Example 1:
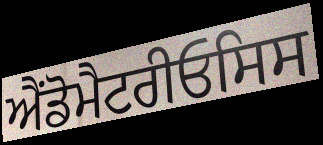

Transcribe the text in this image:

ਐਂਡੋਮੈਟਰੀਓਸਿਸ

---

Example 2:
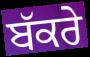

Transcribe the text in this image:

ਬੱਕਰੇ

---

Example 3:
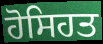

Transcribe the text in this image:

ਹੋਸਿਹਤ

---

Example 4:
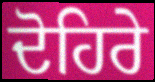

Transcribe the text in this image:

ਦੋਹਿਰੇ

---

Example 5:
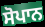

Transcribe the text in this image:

ਸੋਪਾਨ